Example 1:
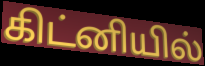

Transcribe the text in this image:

கிட்னியில்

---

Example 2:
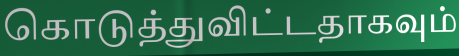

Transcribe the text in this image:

கொடுத்துவிட்டதாகவும்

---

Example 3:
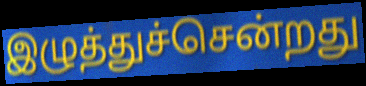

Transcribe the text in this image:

இழுத்துச்சென்றது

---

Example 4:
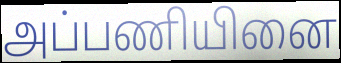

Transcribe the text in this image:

அப்பணியினை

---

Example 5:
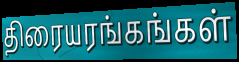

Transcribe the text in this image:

திரையரங்கங்கள்